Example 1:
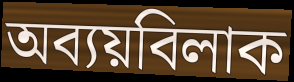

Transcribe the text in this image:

অব্যয়বিলাক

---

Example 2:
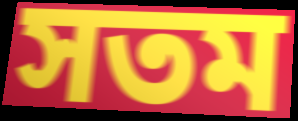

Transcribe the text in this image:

সতম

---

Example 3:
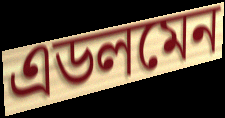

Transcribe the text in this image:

এডলমেন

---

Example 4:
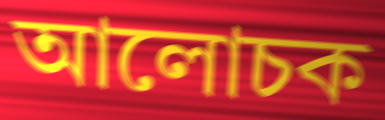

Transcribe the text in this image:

আলোচক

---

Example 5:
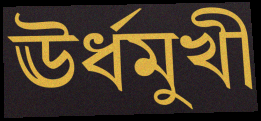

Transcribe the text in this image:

ঊৰ্ধমুখী